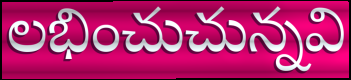
లభించుచున్నవి